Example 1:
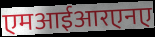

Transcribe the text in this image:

एमआईआरएनए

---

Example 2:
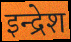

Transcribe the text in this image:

इन्द्रेश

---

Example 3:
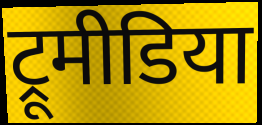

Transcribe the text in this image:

ट्रूमीडिया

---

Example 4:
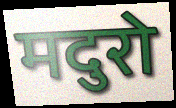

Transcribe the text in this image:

मदुरो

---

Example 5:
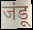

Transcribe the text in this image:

जंडू